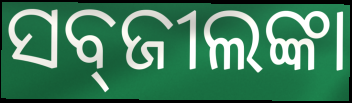
ସବ୍‌ଜୀଲଙ୍କା